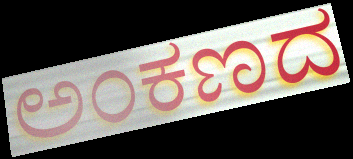
ಅಂಕಣದ